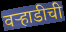
वऱ्हाडीची